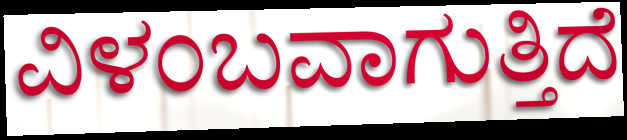
ವಿಳಂಬವಾಗುತ್ತಿದೆ